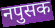
नपुसक